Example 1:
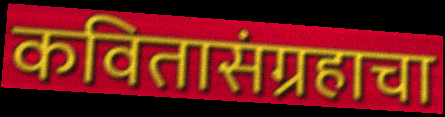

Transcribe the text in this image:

कवितासंग्रहाचा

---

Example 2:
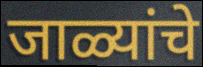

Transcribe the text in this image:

जाळ्यांचे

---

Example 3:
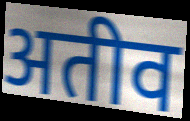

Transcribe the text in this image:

अतीव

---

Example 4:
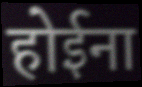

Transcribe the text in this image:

होईना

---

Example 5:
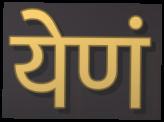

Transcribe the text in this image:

येणं